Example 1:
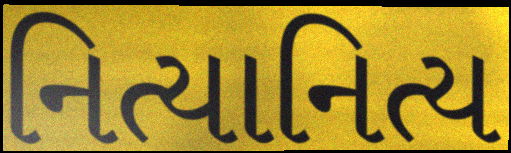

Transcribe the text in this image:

નિત્યાનિત્ય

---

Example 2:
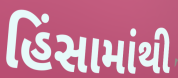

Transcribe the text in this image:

હિંસામાંથી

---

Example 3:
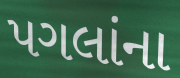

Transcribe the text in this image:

પગલાંના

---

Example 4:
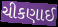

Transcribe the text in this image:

ચીકણાઈ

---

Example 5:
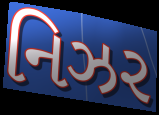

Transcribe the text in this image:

નિઝર